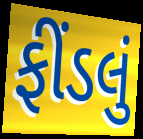
ફીંડલું